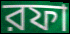
রফা